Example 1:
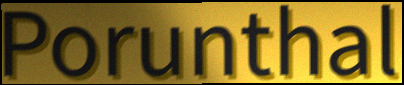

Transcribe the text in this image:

Porunthal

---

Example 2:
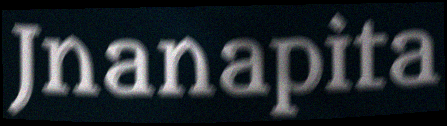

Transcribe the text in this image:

Jnanapita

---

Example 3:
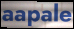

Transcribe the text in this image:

aapale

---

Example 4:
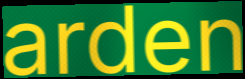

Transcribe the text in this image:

arden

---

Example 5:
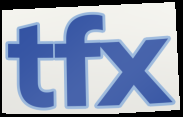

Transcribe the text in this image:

tfx